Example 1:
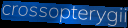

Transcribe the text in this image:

crossopterygii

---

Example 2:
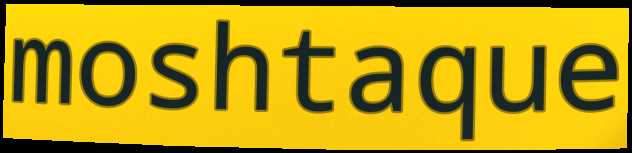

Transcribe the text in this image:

moshtaque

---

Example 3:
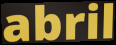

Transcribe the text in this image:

abril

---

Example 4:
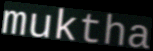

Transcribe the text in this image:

muktha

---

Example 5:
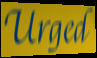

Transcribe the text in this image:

Urged